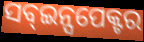
ସବ୍ଇନ୍ସପେକ୍ଟର